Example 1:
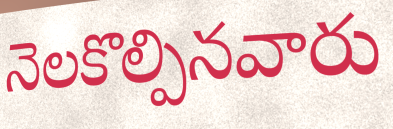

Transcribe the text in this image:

నెలకొల్పినవారు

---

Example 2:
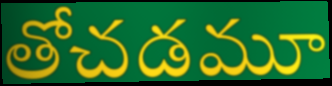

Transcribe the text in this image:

తోచడమూ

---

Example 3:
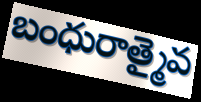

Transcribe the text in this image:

బంధురాత్మైవ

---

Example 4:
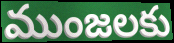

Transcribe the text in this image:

ముంజలకు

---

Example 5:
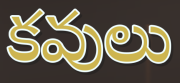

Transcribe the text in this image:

కవులు